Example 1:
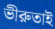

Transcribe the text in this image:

ভীরুতাই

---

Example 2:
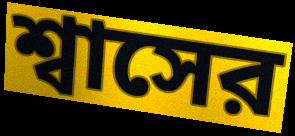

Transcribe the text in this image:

শ্বাসের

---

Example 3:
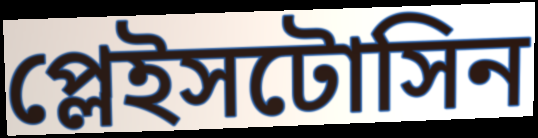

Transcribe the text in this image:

প্লেইসটোসিন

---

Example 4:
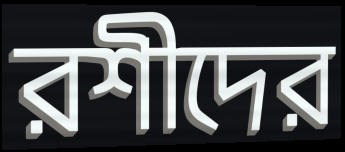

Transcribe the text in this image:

রশীদের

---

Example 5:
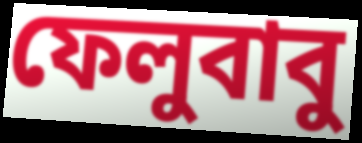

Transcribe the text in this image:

ফেলুবাবু